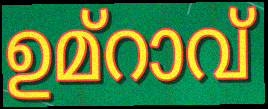
ഉമ്റാവ്